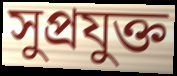
সুপ্রযুক্ত